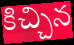
కిచ్చిన